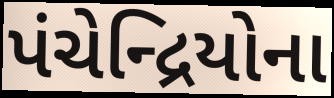
પંચેન્દ્રિયોના